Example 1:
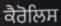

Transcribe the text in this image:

ਕੈਰੋਲਿਸ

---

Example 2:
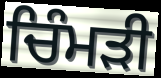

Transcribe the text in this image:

ਚਿੰਮੜੀ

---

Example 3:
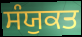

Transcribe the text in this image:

ਸੰਯੁਕਤ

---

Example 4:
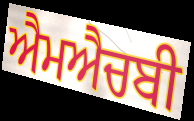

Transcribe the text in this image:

ਐਮਐਚਬੀ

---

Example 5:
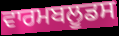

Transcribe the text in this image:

ਵਾਰਮਬਲੂਡਸ